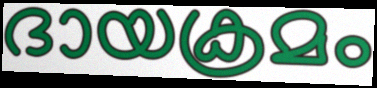
ദായക്രമം